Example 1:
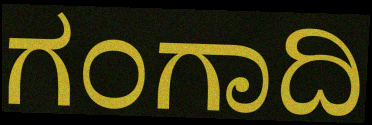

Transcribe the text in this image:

ಗಂಗಾದಿ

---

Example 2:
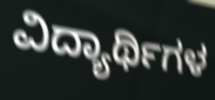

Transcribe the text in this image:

ವಿದ್ಯಾರ್ಥಿಗಳ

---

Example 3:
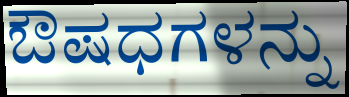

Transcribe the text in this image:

ಔಷಧಗಳನ್ನು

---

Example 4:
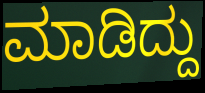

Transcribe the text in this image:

ಮಾಡಿದ್ದು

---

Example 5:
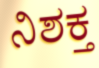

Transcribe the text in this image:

ನಿಶಕ್ತ